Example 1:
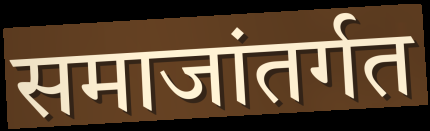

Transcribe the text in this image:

समाजांतर्गत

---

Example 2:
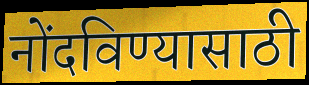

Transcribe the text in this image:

नोंदविण्यासाठी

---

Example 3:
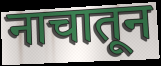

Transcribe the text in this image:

नाचातून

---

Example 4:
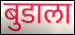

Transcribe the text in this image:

बुडाला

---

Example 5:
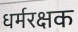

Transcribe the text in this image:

धर्मरक्षक